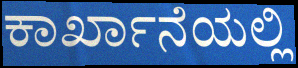
ಕಾರ್ಖಾನೆಯಲ್ಲಿ